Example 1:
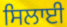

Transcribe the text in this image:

ਸਿਲਾਈ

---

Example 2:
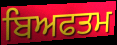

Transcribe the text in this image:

ਬਿਅਫਤਮ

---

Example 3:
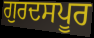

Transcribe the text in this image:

ਗੁਰਦਸਪੂਰ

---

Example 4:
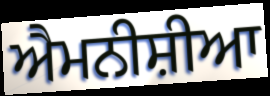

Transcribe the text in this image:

ਐਮਨੀਸ਼ੀਆ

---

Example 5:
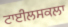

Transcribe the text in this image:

ਟਾਈਲਸਕਲਾ